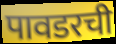
पावडरची